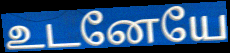
உடனேயே